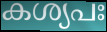
കശ്യപഃ